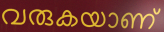
വരുകയാണ്